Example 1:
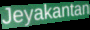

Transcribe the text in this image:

Jeyakantan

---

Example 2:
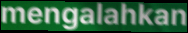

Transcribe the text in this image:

mengalahkan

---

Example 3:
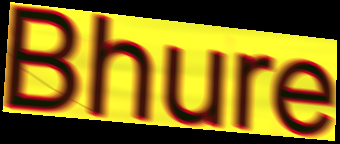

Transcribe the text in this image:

Bhure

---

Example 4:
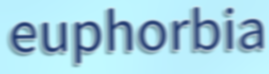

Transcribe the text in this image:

euphorbia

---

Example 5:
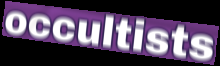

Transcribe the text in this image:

occultists